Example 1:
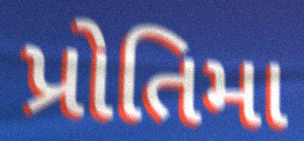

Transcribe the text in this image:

પ્રોતિમા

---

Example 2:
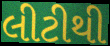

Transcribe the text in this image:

લીટીથી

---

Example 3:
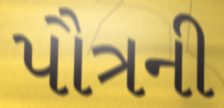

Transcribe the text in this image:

પૌત્રની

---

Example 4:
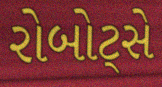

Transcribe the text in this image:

રોબોટ્સે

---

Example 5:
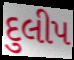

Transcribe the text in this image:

દુલીપ